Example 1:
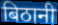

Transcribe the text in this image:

बिठानी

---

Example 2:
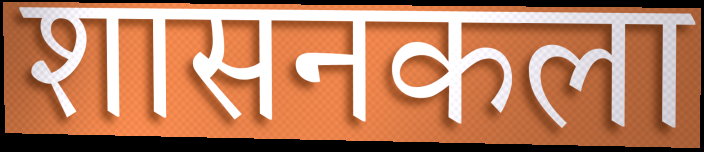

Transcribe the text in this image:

शासनकला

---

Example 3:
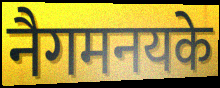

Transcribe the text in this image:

नैगमनयके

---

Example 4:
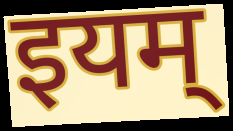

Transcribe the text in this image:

इयम्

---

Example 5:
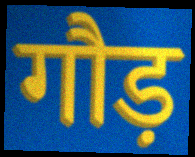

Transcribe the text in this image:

गौड़